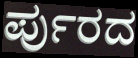
ರ್ಪುರದ